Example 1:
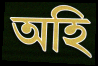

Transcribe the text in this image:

অহি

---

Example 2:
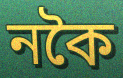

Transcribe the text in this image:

নকৈ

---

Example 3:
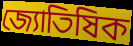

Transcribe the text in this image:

জ্যোতিষিক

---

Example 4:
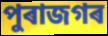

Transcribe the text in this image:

পুৰাজগৰ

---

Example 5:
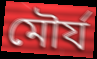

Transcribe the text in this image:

মৌৰ্য